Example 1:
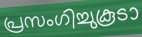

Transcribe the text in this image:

പ്രസംഗിച്ചുകൂടാ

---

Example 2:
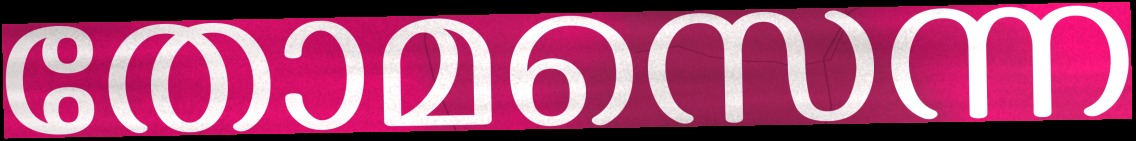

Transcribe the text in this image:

തോമസെന്ന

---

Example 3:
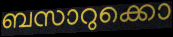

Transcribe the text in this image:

ബസാറുക്കൊ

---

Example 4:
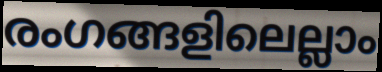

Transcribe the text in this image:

രംഗങ്ങളിലെല്ലാം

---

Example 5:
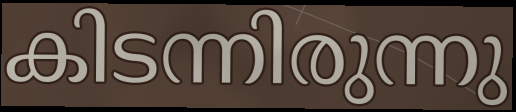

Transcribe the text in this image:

കിടന്നിരുന്നു